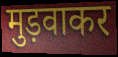
मुड़वाकर